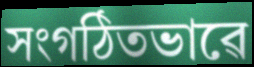
সংগঠিতভাৱে